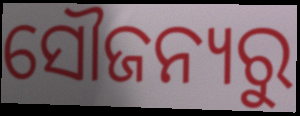
ସୌଜନ୍ୟରୁ